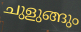
ചുളുങ്ങും